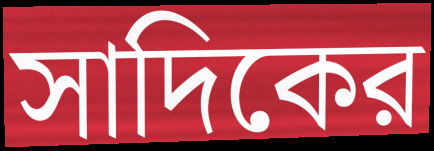
সাদিকের